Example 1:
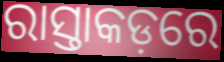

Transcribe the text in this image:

ରାସ୍ତାକଡ଼ରେ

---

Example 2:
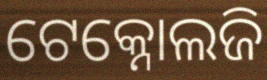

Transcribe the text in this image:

ଟେକ୍ନୋଲଜି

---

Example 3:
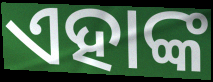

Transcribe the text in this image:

ଏହାଙ୍କ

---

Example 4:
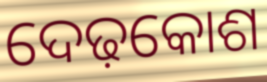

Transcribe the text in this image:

ଦେଢ଼କୋଶ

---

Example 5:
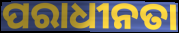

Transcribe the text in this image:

ପରାଧୀନତା